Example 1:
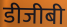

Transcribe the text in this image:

डीजीबी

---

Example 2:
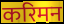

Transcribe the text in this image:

करिमन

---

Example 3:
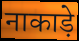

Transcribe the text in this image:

नाकाड़े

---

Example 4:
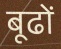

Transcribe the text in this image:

बूढों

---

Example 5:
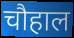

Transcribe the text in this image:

चौहाल